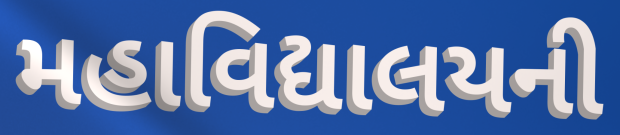
મહાવિદ્યાલયની